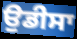
ਉਡੀਸਾ